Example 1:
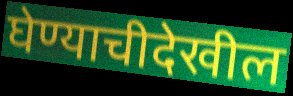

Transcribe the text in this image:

घेण्याचीदेखील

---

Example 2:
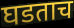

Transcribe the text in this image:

घडताच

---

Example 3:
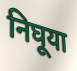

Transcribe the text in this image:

निघूया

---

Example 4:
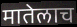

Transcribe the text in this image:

मातेलाच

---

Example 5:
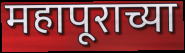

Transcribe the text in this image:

महापूराच्या